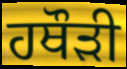
ਹਥੌੜੀ